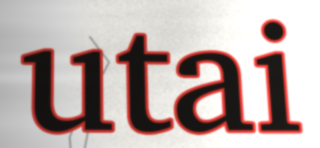
utai